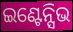
ଇଣ୍ଟେନ୍ସିଭ